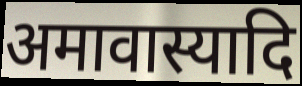
अमावास्यादि